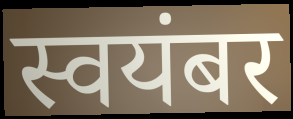
स्वयंबर